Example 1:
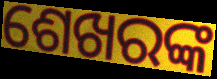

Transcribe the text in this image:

ଶେଖରଙ୍କ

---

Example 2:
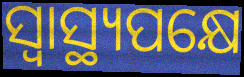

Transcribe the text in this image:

ସ୍ଵାସ୍ଥ୍ୟପକ୍ଷେ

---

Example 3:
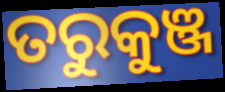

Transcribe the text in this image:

ତରୁକୁଞ୍ଜ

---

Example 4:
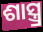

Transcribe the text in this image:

ଶାସ୍ତ୍ର୍ର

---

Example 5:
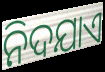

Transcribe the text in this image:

ନିଦଯାଏ